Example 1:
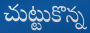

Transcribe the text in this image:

చుట్టుకొన్న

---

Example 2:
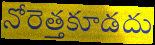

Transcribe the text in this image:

నోరెత్తకూడదు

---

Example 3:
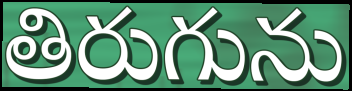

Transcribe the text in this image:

తిరుగును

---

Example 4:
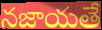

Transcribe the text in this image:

నజాయతే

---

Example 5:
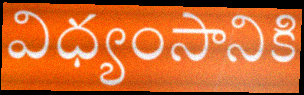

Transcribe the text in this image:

విధ్యంసానికి